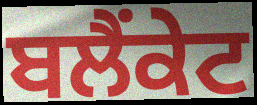
ਬਲੈਂਕੇਟ